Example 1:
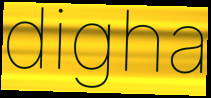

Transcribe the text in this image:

digha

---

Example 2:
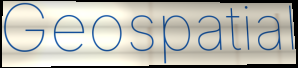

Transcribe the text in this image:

Geospatial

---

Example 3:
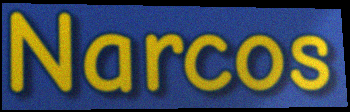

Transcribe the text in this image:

Narcos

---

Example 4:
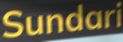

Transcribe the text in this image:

Sundari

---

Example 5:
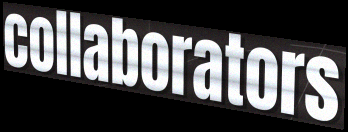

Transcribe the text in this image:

collaborators